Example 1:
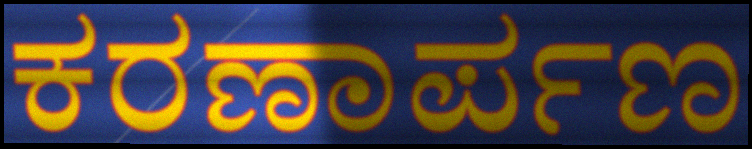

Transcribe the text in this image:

ಕರಣಾರ್ಪಣ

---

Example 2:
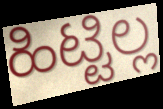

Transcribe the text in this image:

ಹಿಟ್ಟಿಲ್ಲ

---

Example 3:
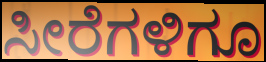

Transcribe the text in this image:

ಸೀರೆಗಳಿಗೂ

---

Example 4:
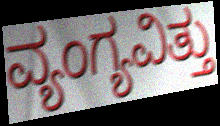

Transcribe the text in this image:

ವ್ಯಂಗ್ಯವಿತ್ತು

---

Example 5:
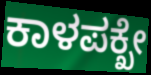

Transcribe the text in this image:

ಕಾಳಪಕ್ಖೇ